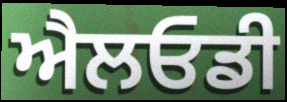
ਐਲਓਡੀ